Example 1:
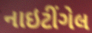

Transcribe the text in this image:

નાઇટીંગેલ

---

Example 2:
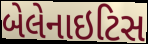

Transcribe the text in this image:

બેલેનાઇટિસ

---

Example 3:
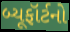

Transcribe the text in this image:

બ્યૂફૉર્ટનો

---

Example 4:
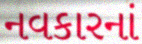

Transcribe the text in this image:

નવકારનાં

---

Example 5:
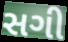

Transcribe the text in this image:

સગી